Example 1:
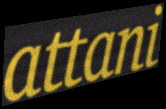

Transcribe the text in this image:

attani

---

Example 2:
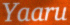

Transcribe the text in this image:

Yaaru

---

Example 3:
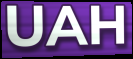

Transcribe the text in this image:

UAH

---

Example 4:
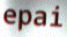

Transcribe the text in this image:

epai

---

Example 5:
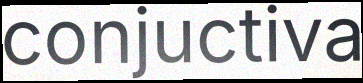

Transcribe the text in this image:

conjuctiva